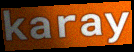
karay